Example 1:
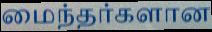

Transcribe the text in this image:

மைந்தர்களான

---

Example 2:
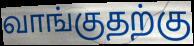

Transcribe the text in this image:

வாங்குதற்கு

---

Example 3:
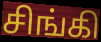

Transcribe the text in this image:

சிங்கி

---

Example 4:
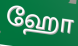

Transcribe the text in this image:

ஹோ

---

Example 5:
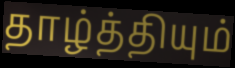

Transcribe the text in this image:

தாழ்த்தியும்